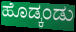
ಹೊಡ್ಕಂಡು